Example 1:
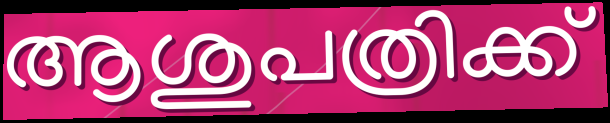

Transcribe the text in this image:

ആശുപത്രിക്ക്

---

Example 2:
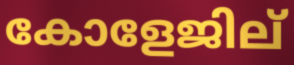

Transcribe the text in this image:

കോളേജില്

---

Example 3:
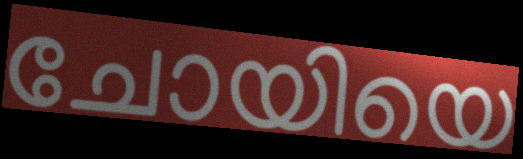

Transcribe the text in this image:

ചോയിയെ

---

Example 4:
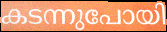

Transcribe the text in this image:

കടന്നുപോയി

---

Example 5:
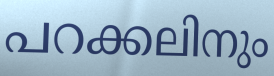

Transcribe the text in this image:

പറക്കലിനും